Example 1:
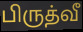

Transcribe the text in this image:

பிருத்வீ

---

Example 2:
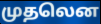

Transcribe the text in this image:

முதலென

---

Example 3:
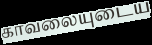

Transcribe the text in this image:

காவலையுடைய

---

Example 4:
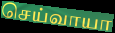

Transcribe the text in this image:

செய்வாயா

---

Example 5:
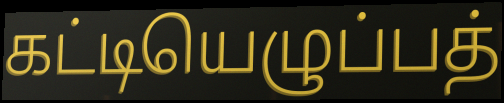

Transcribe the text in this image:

கட்டியெழுப்பத்